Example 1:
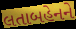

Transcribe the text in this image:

લતાબહેનને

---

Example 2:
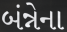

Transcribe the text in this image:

બંન્નેના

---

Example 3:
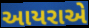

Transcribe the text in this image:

આયરાએ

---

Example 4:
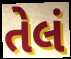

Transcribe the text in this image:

તેલં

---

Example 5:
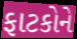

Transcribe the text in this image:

ફાટકોને